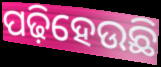
ପଢ଼ିହେଉଛି